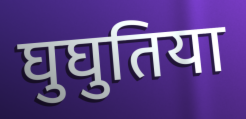
घुघुतिया